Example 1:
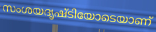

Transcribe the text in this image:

സംശയദൃഷ്ടിയോടെയാണ്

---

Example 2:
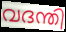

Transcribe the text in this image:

വദന്തി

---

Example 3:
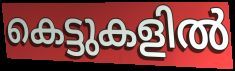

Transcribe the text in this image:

കെട്ടുകളിൽ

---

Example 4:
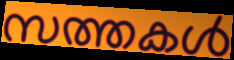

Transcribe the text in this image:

സത്തകൾ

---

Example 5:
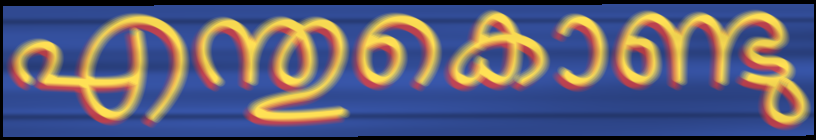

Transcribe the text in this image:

എന്തുകൊണ്ടു